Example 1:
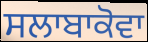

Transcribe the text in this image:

ਸਲਾਬਾਕੋਵਾ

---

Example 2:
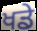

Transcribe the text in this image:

ਖਡੇ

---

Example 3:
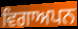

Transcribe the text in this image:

ਵਿਗਾਅਪਨ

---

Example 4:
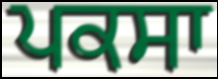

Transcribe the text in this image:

ਪਕਸਾ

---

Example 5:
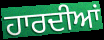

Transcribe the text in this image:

ਹਾਰਦੀਆਂ